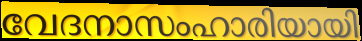
വേദനാസംഹാരിയായി